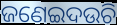
ଜଣେଇଦଉଚି